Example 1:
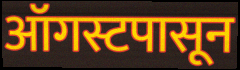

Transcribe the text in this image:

ऑगस्टपासून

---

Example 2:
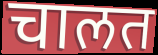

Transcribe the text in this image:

चालत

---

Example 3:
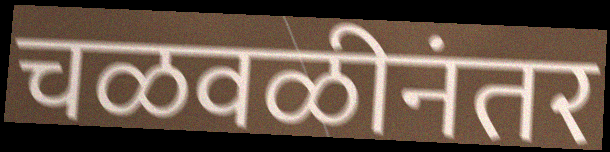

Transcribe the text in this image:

चळवळीनंतर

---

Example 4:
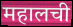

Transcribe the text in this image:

महालची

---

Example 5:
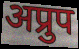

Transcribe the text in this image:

अप्रुप